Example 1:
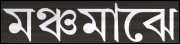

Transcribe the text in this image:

মঞ্চমাঝে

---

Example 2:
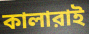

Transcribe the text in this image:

কালারাই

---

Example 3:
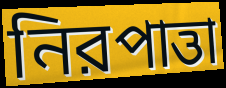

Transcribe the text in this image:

নিরপাত্তা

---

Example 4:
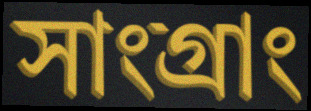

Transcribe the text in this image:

সাংগ্রাং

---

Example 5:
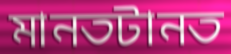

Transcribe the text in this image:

মানতটানত